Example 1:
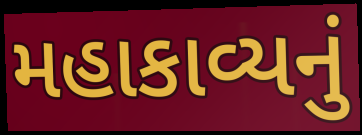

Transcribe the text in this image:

મહાકાવ્યનું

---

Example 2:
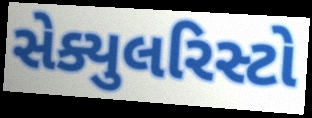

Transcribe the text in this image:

સેક્યુલરિસ્ટો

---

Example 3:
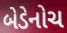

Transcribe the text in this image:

બેડેનોચ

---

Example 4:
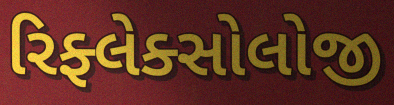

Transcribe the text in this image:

રિફ્લેક્સોલોજી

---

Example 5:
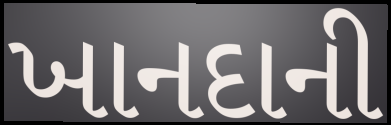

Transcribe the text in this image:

ખાનદાની